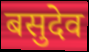
बसुदेव